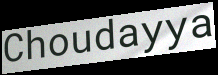
Choudayya